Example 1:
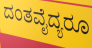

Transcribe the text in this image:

ದಂತವೈದ್ಯರೂ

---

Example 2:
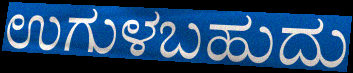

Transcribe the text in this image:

ಉಗುಳಬಹುದು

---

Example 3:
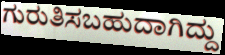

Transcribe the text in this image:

ಗುರುತಿಸಬಹುದಾಗಿದ್ದು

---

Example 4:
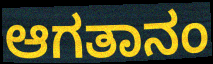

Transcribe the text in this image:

ಆಗತಾನಂ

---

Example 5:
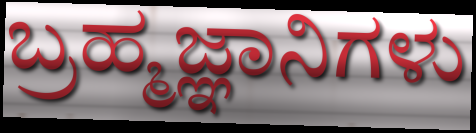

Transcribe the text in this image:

ಬ್ರಹ್ಮಜ್ಞಾನಿಗಳು